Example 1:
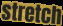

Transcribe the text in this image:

stretch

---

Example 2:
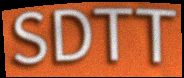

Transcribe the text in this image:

SDTT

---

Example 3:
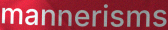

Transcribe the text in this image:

mannerisms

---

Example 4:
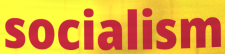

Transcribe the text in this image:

socialism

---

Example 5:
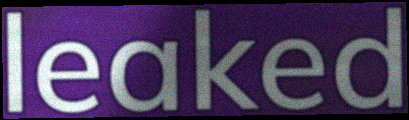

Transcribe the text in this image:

leaked